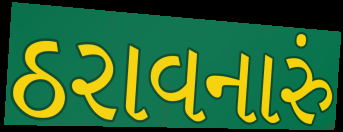
ઠરાવનારું